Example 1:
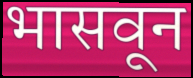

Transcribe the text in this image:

भासवून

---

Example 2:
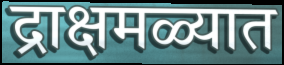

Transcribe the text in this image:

द्राक्षमळ्यात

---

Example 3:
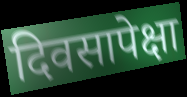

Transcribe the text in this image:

दिवसापेक्षा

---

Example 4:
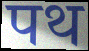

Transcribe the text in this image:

पथ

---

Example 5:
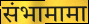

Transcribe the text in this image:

संभामामा